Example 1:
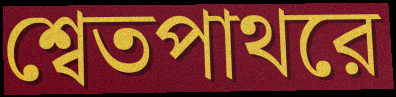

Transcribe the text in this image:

শ্বেতপাথরে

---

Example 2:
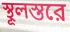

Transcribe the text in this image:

স্থূলস্তরে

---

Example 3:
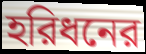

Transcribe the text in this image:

হরিধনের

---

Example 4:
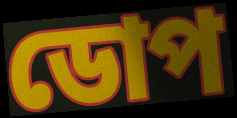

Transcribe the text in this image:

ডোপ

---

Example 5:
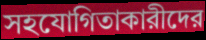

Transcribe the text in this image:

সহযোগিতাকারীদের